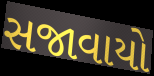
સજાવાયો